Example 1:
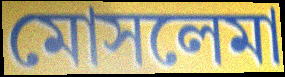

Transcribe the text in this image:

মোসলেমা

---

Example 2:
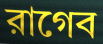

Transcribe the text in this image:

রাগেব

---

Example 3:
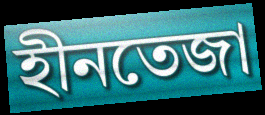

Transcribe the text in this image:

হীনতেজা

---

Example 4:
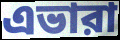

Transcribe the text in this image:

এভারা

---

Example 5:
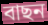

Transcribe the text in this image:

বাছন